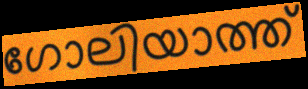
ഗോലിയാത്ത്